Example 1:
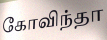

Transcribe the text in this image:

கோவிந்தா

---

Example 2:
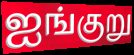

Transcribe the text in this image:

ஐங்குறு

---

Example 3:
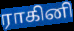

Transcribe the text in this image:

ராகினி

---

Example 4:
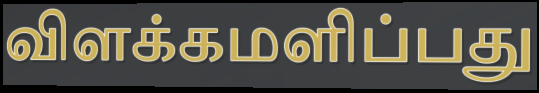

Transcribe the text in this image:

விளக்கமளிப்பது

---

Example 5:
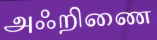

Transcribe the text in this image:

அஃறிணை